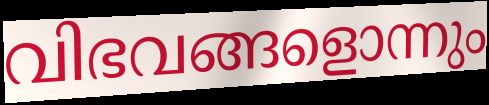
വിഭവങ്ങളൊന്നും